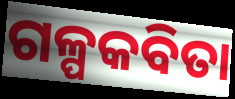
ଗଳ୍ପକବିତା